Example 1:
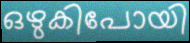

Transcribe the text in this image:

ഒഴുകിപോയി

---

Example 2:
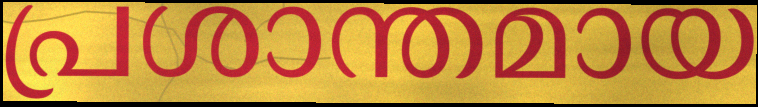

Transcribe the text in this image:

പ്രശാന്തമായ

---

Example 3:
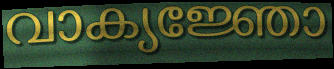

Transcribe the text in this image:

വാക്യജ്ഞോ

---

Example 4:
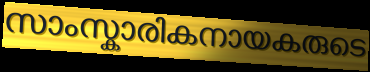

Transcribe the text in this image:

സാംസ്കാരികനായകരുടെ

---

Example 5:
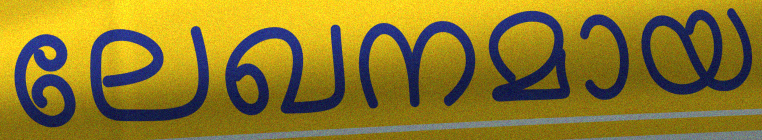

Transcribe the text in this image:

ലേഖനമായ